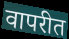
वापरीत